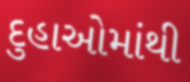
દુહાઓમાંથી